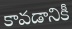
కావడానికీ